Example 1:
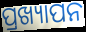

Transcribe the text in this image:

ପ୍ରଖ୍ୟାପନ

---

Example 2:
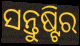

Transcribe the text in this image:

ସନ୍ତୁଷ୍ଟିର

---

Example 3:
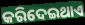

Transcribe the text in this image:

କରିଦେଇଥାଏ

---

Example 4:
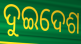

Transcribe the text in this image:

ଦୁଇଦେଶ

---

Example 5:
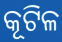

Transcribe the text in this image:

କୂଟିଳ